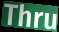
Thru